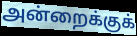
அன்றைக்குக்